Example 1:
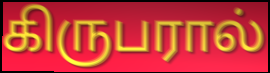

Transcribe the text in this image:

கிருபரால்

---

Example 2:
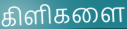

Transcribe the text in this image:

கிளிகளை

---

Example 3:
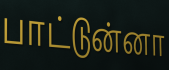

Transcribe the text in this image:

பாட்டுன்னா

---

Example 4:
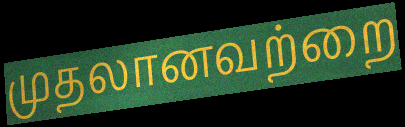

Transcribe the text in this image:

முதலானவற்றை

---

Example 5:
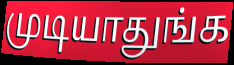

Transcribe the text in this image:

முடியாதுங்க